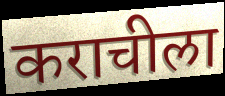
कराचीला